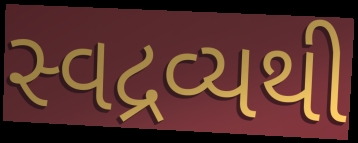
સ્વદ્રવ્યથી